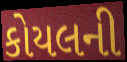
કોયલની